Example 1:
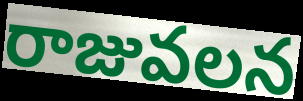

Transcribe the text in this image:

రాజువలన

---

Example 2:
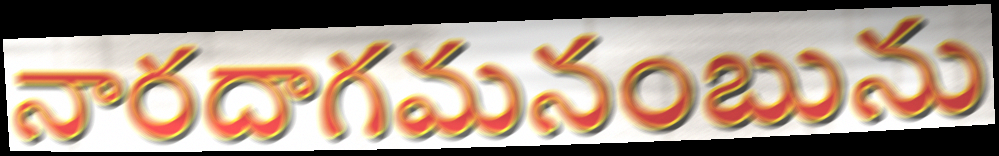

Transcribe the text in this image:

నారదాగమనంబును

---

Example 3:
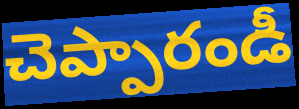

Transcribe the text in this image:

చెప్పారండీ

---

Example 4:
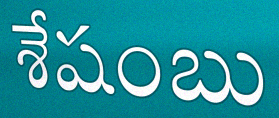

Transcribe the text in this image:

శేషంబు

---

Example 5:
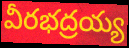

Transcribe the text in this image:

వీరభద్రయ్య